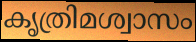
കൃത്രിമശ്വാസം